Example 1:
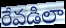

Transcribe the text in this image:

రేవడిలా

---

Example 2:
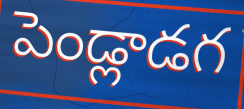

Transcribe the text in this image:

పెండ్లాడగ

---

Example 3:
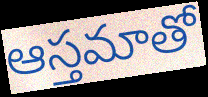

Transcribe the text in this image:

ఆస్తమాతో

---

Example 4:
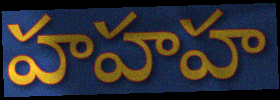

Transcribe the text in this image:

హహహ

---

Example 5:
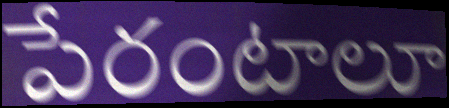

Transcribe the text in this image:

పేరంటాలూ